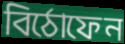
বিঠোফেন